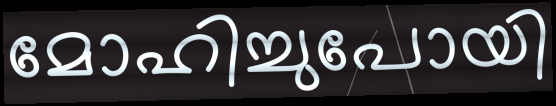
മോഹിച്ചുപോയി